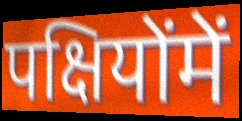
पक्षियोंमें